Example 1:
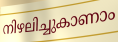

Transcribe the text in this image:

നിഴലിച്ചുകാണാം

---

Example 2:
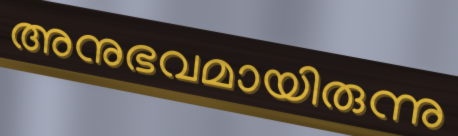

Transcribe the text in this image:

അനുഭവമായിരുന്നു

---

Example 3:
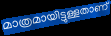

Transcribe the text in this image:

മാത്രമായിട്ടുള്ളതാണ്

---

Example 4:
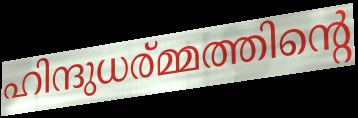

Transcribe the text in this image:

ഹിന്ദുധര്മ്മത്തിന്റെ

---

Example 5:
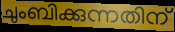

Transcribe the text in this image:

ചുംബിക്കുന്നതിന്